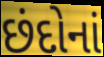
છંદોનાં